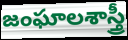
జంఘాలశాస్త్రీ